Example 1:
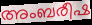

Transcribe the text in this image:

അംബരീഷ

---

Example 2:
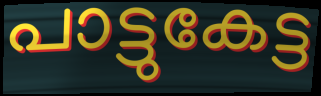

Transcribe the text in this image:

പാട്ടുകേട്ട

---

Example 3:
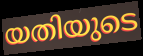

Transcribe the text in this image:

യതിയുടെ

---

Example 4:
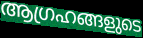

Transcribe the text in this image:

ആഗ്രഹങ്ങളുടെ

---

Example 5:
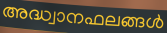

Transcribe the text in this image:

അദ്ധ്വാനഫലങ്ങൾ